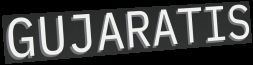
GUJARATIS